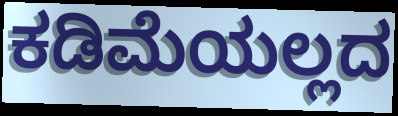
ಕಡಿಮೆಯಲ್ಲದ